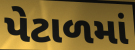
પેટાળમાં